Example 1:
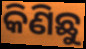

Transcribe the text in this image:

କିଣିଛୁ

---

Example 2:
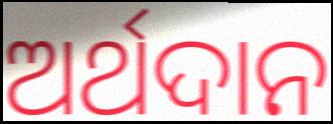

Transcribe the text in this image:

ଅର୍ଥଦାନ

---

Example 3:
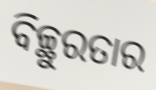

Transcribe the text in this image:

ବିଚ୍ଛୁରତାର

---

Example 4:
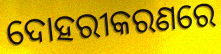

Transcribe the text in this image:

ଦୋହରୀକରଣରେ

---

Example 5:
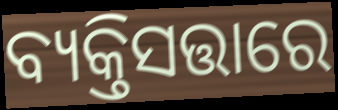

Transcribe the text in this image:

ବ୍ୟକ୍ତିସତ୍ତାରେ